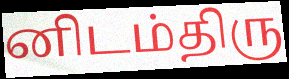
னிடம்திரு